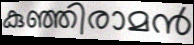
കുഞ്ഞിരാമൻ